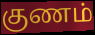
குணம்